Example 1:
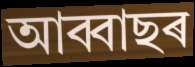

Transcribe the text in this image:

আব্বাছৰ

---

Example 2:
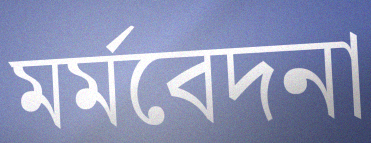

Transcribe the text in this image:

মৰ্মবেদনা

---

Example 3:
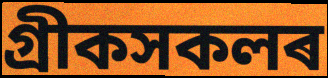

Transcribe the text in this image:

গ্ৰীকসকলৰ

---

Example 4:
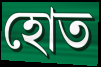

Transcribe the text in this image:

হোত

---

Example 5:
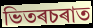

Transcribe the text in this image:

ভিতৰচৰাত